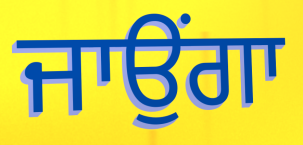
ਜਾਉਂਗਾ